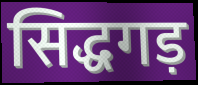
सिद्धगड़